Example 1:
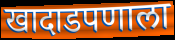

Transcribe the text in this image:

खादाडपणाला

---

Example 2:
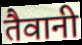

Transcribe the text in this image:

तैवानी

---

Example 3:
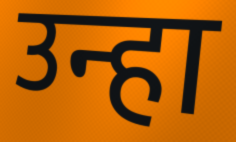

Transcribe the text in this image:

उन्हा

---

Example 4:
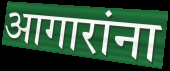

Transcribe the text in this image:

आगारांना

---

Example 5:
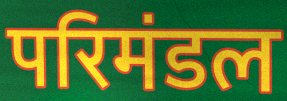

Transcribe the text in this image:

परिमंडल